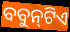
ବବୁନ୍‍ଟିଏ